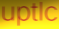
uptlc